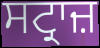
ਸਟ੍ਰਾਜ਼